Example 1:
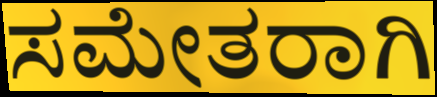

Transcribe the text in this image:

ಸಮೇತರಾಗಿ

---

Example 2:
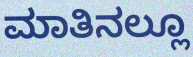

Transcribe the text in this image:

ಮಾತಿನಲ್ಲೂ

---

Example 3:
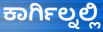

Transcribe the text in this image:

ಕಾರ್ಗಿಲ್ನಲ್ಲಿ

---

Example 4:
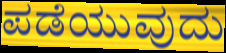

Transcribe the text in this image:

ಪಡೆಯುವುದು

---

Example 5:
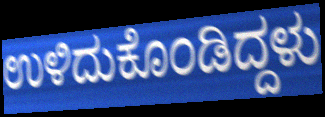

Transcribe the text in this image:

ಉಳಿದುಕೊಂಡಿದ್ದಳು